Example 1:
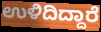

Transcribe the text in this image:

ಉಳಿದಿದ್ದಾರೆ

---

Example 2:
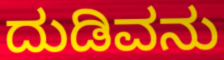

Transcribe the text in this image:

ದುಡಿವನು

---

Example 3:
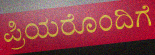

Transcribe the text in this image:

ಪ್ರಿಯರೊಂದಿಗೆ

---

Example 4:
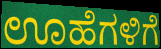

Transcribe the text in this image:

ಊಹೆಗಳಿಗೆ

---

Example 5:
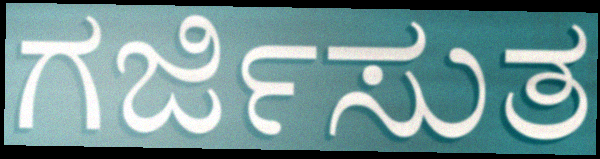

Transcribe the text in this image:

ಗರ್ಜಿಸುತ